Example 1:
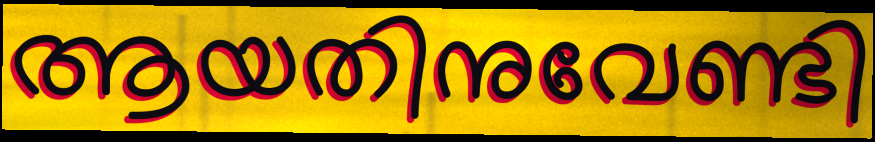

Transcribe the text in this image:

ആയതിനുവേണ്ടി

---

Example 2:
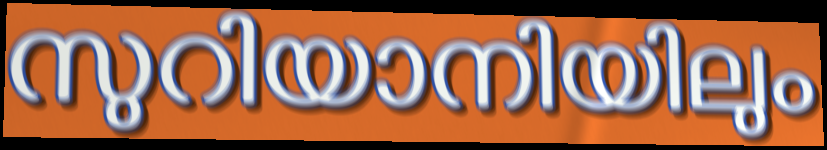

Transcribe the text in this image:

സുറിയാനിയിലും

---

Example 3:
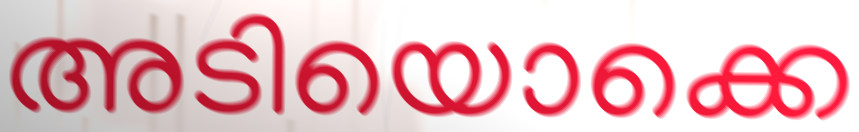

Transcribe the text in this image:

അടിയൊക്കെ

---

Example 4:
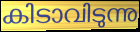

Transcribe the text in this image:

കിടാവിടുന്നു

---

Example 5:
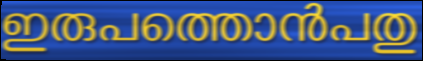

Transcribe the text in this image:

ഇരുപത്തൊൻപതു